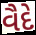
વૈદે